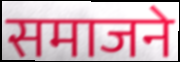
समाजने